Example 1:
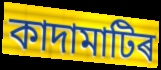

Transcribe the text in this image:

কাদামাটিৰ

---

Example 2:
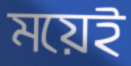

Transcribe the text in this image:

ময়েই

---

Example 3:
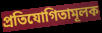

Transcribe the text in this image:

প্ৰতিযোগিতামূলক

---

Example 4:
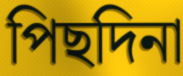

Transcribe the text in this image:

পিছদিনা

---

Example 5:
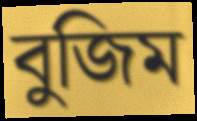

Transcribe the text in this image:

বুজিম